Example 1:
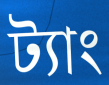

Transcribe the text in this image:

ট্যাং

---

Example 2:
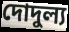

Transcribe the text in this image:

দোদুল্য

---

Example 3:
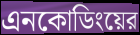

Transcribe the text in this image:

এনকোডিংয়ের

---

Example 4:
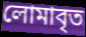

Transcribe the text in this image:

লোমাবৃত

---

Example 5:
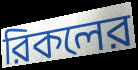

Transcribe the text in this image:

রিকলের